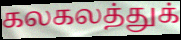
கலகலத்துக்